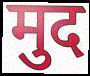
मुद